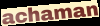
achaman